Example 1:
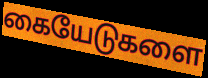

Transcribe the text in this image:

கையேடுகளை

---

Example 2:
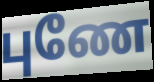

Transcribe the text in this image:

புணே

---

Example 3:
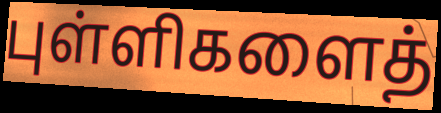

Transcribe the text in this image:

புள்ளிகளைத்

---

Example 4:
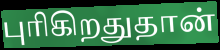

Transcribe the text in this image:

புரிகிறதுதான்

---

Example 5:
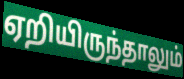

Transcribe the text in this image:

ஏறியிருந்தாலும்